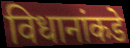
विधानांकडे